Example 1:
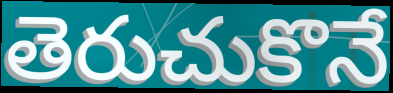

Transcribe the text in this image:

తెరుచుకొనే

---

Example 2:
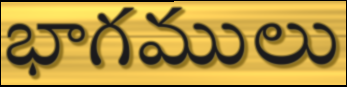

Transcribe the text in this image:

భాగములు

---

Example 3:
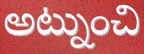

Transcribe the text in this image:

అట్నుంచి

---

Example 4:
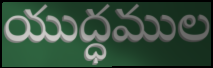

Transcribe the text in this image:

యుద్ధముల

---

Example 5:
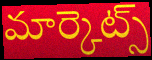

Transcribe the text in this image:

మార్కెట్స్